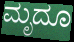
ಮೃದೂ